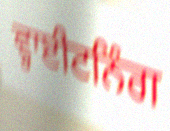
ਵ੍ਹਾਈਟਨਿੰਗ